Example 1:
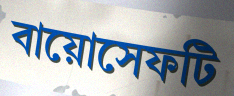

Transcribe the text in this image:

বায়োসেফটি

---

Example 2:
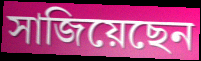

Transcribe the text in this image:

সাজিয়েছেন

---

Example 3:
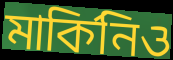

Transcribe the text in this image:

মার্কিনিও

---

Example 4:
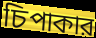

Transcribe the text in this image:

চিপাকার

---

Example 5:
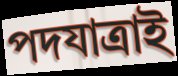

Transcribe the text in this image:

পদযাত্রাই